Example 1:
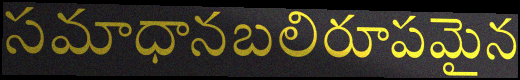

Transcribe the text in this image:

సమాధానబలిరూపమైన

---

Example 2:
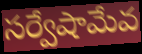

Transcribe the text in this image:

సర్వేషామేవ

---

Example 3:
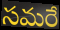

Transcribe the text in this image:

సమరే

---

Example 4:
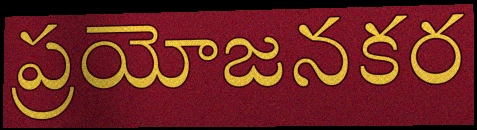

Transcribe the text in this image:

ప్రయోజనకర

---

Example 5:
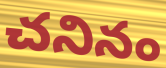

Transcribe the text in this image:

చనినం